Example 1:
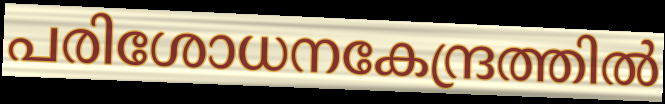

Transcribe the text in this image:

പരിശോധനകേന്ദ്രത്തിൽ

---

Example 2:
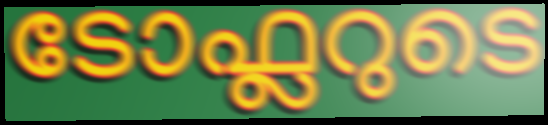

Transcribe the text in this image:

ടോഫ്ലറുടെ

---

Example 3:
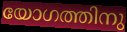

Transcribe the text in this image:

യോഗത്തിനു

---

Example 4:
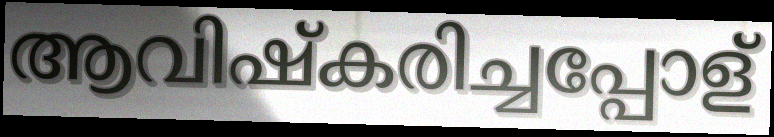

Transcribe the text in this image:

ആവിഷ്കരിച്ചപ്പോള്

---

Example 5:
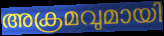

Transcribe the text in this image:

അക്രമവുമായി